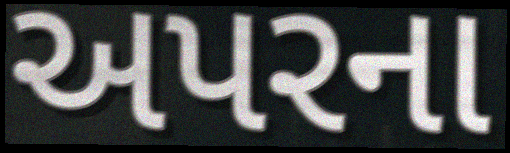
અપરના